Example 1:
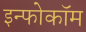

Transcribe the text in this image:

इन्फोकॉम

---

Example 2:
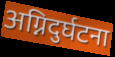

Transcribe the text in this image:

अग्निदुर्घटना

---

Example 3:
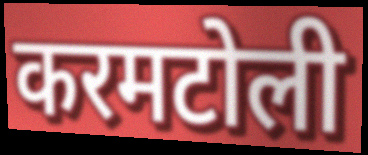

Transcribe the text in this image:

करमटोली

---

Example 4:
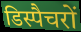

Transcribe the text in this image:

डिस्पैचरों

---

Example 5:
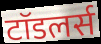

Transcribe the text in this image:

टॉडलर्स